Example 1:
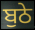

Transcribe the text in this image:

ਬੁਠੇ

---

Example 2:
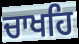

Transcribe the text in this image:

ਚਾਖਹਿ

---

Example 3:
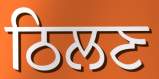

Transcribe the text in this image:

ਠਿਲਣ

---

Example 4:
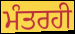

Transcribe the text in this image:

ਮੰਤਰਹੀ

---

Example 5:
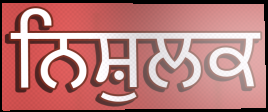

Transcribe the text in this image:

ਨਿਸ਼ੁਲਕ